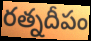
రత్నదీపం